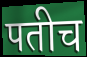
पतीच